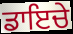
ਡਾਇਚੇ